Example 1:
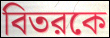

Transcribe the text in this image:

বিতরকে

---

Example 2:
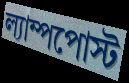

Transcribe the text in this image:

ল্যাম্পপোস্ট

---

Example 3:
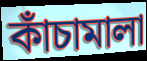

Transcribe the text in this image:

কাঁচামালা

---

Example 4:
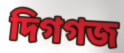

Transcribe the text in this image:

দিগগজ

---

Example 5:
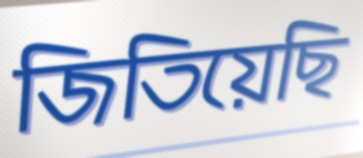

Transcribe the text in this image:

জিতিয়েছি